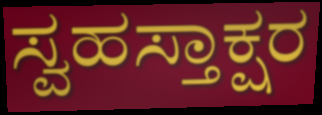
ಸ್ವಹಸ್ತಾಕ್ಷರ